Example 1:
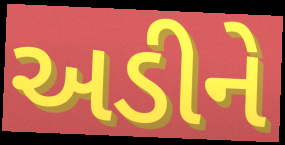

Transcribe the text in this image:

અડીને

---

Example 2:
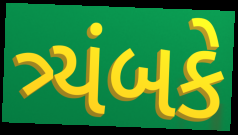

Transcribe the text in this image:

ત્ર્યંબકે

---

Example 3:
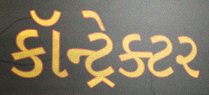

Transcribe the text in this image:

કૉન્ટ્રેક્ટર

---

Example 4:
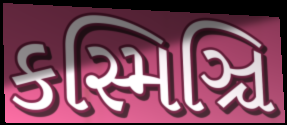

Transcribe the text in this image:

કસ્મિઞ્ચિ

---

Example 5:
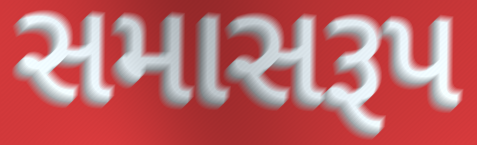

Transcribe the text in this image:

સમાસરૂપ